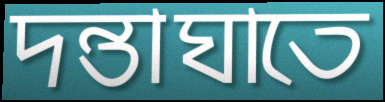
দন্তাঘাতে